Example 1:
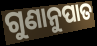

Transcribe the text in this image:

ଗୁଣାନୁପାତ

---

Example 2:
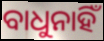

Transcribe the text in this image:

ବାଧୁନାହିଁ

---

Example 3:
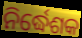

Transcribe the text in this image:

ନିର୍ଦ୍ଧେଶକ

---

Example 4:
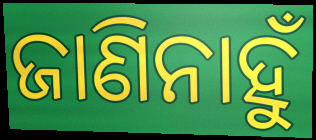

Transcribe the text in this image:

ଜାଣିନାହୁଁ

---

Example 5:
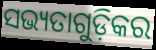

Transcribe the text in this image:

ସଭ୍ୟତାଗୁଡ଼ିକର